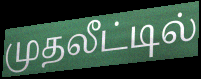
முதலீட்டில்